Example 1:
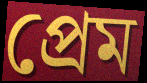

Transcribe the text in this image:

প্রেম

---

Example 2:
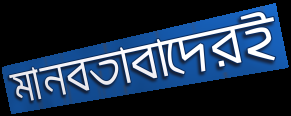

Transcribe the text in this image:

মানবতাবাদেরই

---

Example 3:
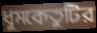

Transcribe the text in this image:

ধুমকেতুটির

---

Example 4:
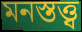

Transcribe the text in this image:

মনস্তত্ত্ব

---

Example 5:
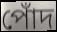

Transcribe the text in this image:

পোঁদ